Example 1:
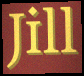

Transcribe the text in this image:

Jill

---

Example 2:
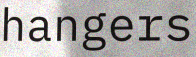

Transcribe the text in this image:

hangers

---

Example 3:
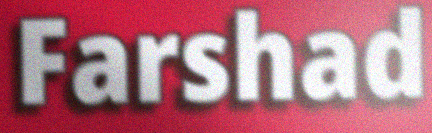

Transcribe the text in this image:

Farshad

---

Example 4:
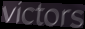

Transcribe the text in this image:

victors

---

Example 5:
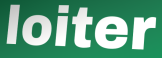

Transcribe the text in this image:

loiter